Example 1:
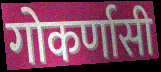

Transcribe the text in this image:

गोकर्णासी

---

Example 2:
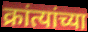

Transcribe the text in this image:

क्रांत्यांच्या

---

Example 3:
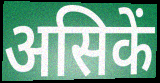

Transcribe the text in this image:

असिकें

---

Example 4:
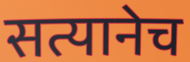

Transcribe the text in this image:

सत्यानेच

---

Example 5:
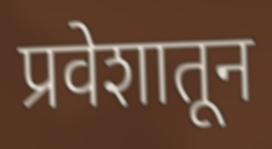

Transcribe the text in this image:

प्रवेशातून